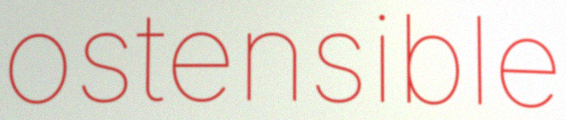
ostensible